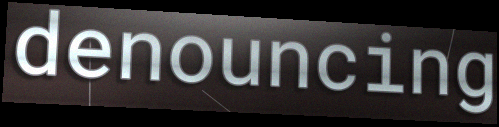
denouncing